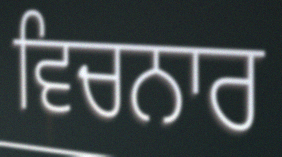
ਵਿਚਨਾਰ